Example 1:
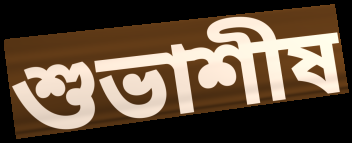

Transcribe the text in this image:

শুভাশীষ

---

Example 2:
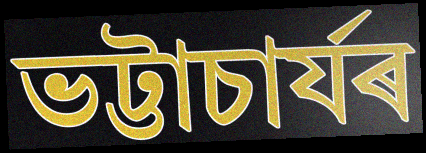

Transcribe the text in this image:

ভট্টাচাৰ্যৰ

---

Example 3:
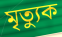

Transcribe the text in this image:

মৃত্যুক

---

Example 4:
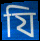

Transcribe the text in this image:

যি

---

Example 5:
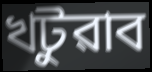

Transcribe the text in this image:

খটুৱাব